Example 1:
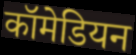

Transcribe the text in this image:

कॉमेडियन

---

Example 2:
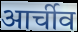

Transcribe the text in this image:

आर्चीव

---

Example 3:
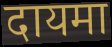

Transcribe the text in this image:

दायमा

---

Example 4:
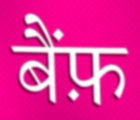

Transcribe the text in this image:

बैंफ़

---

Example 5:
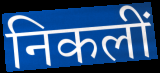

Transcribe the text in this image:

निकलीं